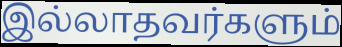
இல்லாதவர்களும்